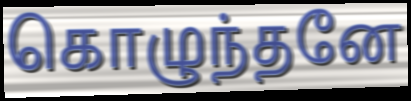
கொழுந்தனே